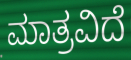
ಮಾತ್ರವಿದೆ